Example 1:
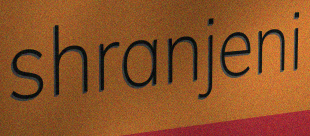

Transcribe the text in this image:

shranjeni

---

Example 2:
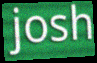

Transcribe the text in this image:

josh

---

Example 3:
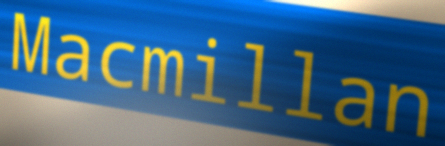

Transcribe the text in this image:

Macmillan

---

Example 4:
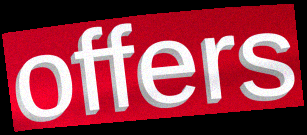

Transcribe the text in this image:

offers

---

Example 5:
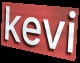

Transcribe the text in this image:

kevi